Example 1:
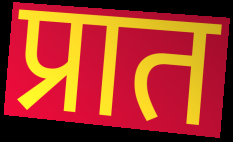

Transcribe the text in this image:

प्रात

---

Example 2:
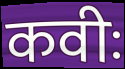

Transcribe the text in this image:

कवीः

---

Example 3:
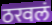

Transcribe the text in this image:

ठरवलं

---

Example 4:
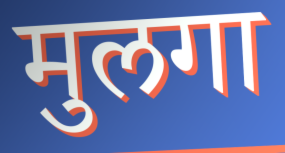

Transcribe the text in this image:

मुलगा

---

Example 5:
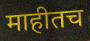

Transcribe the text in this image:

माहीतच